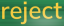
reject